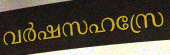
വർഷസഹസ്രേ